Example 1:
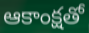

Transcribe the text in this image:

ఆకాంక్షతో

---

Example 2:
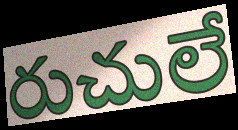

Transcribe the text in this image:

రుచులే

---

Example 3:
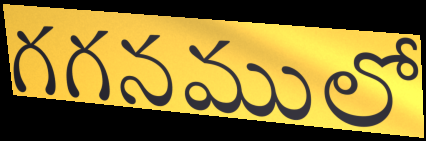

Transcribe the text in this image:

గగనములో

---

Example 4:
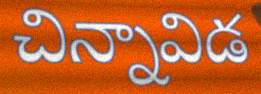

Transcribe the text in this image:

చిన్నావిడ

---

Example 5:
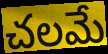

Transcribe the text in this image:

చలమే